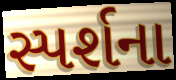
સ્પર્શના